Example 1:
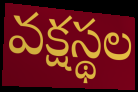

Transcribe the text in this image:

వక్షస్థల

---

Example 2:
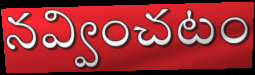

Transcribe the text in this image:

నవ్వించటం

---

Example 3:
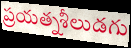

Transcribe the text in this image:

ప్రయత్నశీలుడగు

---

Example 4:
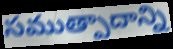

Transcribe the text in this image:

సముత్పాదాన్ని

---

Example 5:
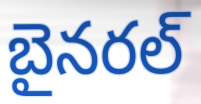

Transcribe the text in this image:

బైనరల్